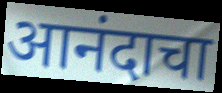
आनंदाचा